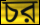
চর